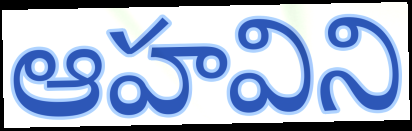
ఆహవిని